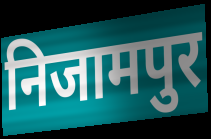
निजामपुर